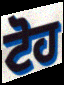
ਟੋਹ